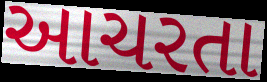
આચરતા